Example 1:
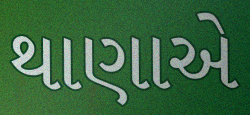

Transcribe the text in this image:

થાણાએ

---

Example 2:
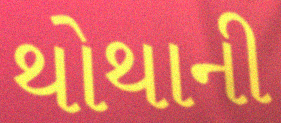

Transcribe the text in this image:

થોથાની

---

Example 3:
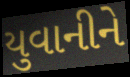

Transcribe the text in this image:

યુવાનીને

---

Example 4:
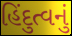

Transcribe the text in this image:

હિંદુત્વનું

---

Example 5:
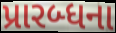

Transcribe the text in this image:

પ્રારબ્ધના